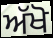
ਅੱਖੋ